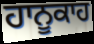
ਹਾਨੂਕਾਹ